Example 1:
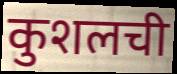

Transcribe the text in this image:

कुशलची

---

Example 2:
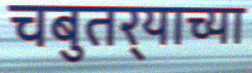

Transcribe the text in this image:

चबुतर्‍याच्या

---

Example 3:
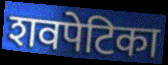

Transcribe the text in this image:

शवपेटिका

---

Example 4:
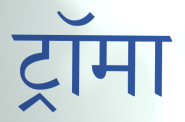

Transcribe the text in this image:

ट्रॉमा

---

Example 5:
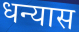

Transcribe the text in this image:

धन्यास